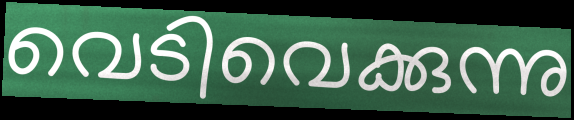
വെടിവെക്കുന്നു